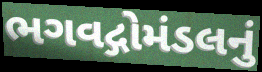
ભગવદ્ગોમંડલનું